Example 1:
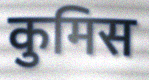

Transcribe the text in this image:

कुमिस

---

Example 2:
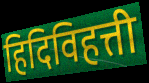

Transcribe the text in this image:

हिदिविहत्ती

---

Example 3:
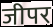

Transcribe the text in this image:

जीपर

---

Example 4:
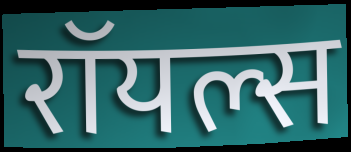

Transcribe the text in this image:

रॉयल्‍स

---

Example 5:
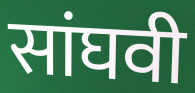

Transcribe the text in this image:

सांघवी